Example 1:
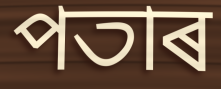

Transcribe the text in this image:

পতাৰ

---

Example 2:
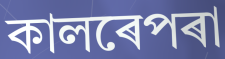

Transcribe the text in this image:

কালৰেপৰা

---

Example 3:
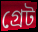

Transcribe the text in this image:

গ্ৰেট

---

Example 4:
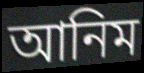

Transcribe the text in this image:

আনিম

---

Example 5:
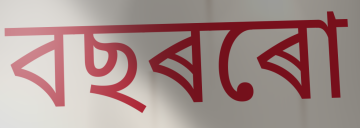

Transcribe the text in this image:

বছৰৰো